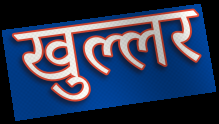
खुल्लर